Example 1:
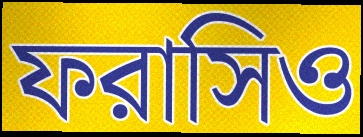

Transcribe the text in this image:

ফরাসিও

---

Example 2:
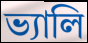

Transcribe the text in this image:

ভ্যালি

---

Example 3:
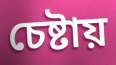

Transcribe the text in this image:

চেষ্টায়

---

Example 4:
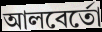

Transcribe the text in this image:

আলবের্তো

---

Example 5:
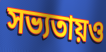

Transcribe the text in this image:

সভ্যতায়ও